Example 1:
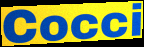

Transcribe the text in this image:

Cocci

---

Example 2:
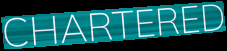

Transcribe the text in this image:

CHARTERED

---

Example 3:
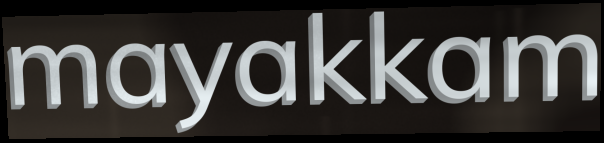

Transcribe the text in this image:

mayakkam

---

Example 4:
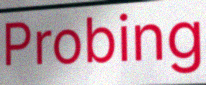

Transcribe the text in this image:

Probing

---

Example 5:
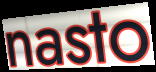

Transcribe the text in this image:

nasto